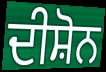
ਦੀਸ਼ੋਨ